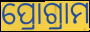
ପ୍ରୋଗ୍ରାମ